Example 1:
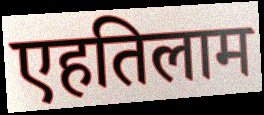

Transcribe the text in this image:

एहतिलाम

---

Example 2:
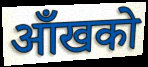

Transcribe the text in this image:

आँखको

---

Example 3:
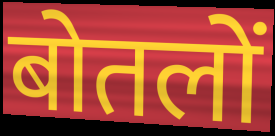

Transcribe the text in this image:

बोतलों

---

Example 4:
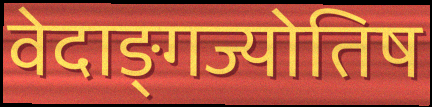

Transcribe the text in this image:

वेदाङ्गज्योतिष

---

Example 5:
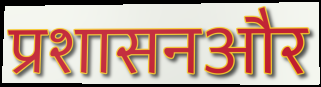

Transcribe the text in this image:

प्रशासनऔर